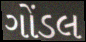
ગોંડલ